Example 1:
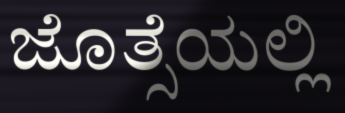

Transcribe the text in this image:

ಜೊತ್ಸೆಯಲ್ಲಿ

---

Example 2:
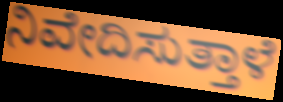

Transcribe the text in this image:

ನಿವೇದಿಸುತ್ತಾಳೆ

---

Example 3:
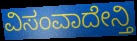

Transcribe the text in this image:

ವಿಸಂವಾದೇನ್ತಿ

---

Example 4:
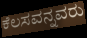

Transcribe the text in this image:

ಕೆಲಸವನ್ನವರು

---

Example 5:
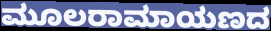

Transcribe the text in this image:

ಮೂಲರಾಮಾಯಣದ